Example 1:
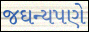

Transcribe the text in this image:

જઘન્યપણે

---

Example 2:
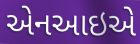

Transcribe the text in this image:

એનઆઇએ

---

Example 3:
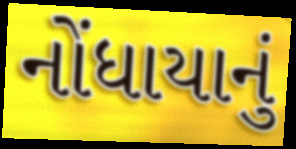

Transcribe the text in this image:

નોંધાયાનું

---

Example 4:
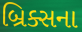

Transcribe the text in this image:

બ્રિક્સના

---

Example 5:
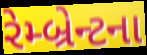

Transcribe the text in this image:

રેમ્બ્રેન્ટના